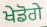
ਖੇਡੋਗੇ